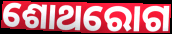
ଶୋଥରୋଗ